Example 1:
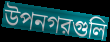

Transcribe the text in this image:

উপনগরগুলি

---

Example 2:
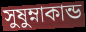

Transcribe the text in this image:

সুষুম্নাকান্ড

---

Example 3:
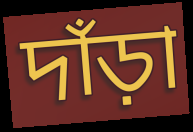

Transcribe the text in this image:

দাঁড়া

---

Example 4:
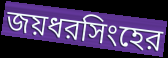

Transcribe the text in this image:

জয়ধরসিংহের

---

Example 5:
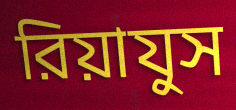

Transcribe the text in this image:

রিয়াযুস